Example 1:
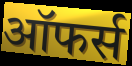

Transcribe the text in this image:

ऑफर्स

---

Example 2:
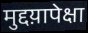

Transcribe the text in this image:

मुद्दय़ापेक्षा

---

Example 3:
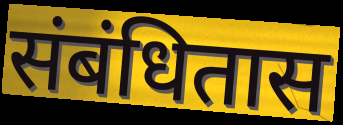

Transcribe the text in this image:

संबंधितास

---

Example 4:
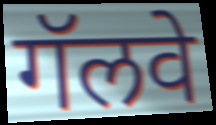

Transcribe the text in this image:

गॅलवे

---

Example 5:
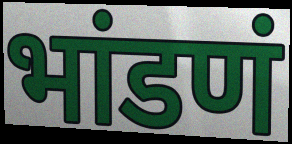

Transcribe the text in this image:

भांडणं